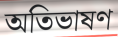
অতিভাষণ